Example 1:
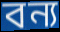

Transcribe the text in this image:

বন্য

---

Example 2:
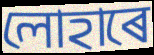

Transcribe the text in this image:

লোহাৰে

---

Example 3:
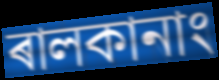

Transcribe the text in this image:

ৰালকানাং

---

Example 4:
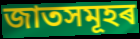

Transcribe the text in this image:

জাতসমূহৰ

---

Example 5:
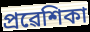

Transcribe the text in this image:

প্ৰৱেশিকা